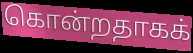
கொன்றதாகக்